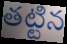
తట్టిన